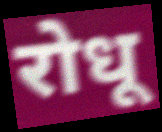
रोधू